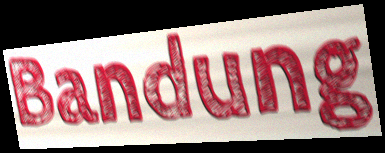
Bandung